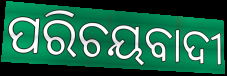
ପରିଚୟବାଦୀ